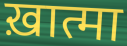
ख़ात्मा